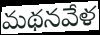
మథనవేళ